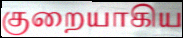
குறையாகிய